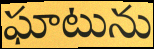
ఘాటును